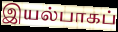
இயல்பாகப்